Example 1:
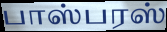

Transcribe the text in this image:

பாஸ்பரஸ்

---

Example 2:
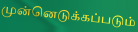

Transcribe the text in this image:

முன்னெடுக்கப்படும்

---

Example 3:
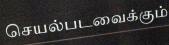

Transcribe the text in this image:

செயல்படவைக்கும்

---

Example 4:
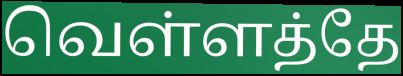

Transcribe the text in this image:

வெள்ளத்தே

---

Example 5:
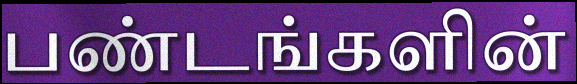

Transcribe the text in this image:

பண்டங்களின்